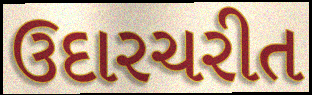
ઉદારચરીત